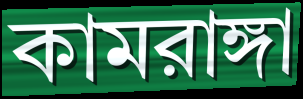
কামরাঙ্গা